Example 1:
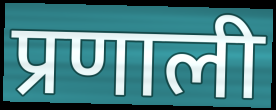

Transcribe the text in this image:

प्रणाली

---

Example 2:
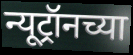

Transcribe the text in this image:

न्यूट्रॉनच्या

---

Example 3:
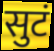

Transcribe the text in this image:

सुटं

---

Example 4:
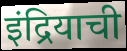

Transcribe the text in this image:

इंद्रियाची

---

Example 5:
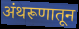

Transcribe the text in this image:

अंथरूणातून